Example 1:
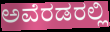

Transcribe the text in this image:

ಅವೆರಡರಲ್ಲಿ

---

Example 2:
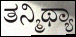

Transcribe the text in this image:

ತನ್ಮಿಥ್ಯಾ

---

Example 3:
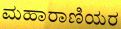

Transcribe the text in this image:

ಮಹಾರಾಣಿಯರ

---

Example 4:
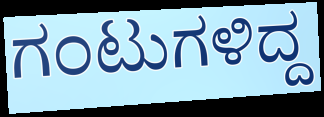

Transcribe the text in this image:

ಗಂಟುಗಳಿದ್ದ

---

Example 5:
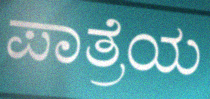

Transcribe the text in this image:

ಪಾತ್ರೆಯ